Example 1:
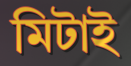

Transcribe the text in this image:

মিটাই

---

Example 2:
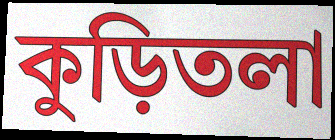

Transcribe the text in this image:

কুড়িতলা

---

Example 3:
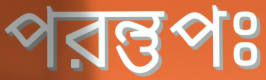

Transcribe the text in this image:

পরন্তুপঃ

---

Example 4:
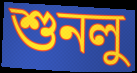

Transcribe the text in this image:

শুনলু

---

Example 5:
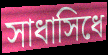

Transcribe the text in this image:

সাধাসিধে